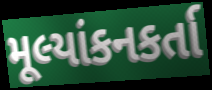
મૂલ્યાંકનકર્તા